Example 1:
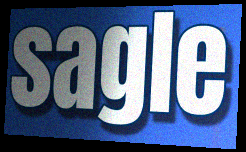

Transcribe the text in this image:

sagle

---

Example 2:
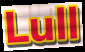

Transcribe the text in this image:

Lull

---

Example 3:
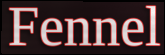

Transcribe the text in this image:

Fennel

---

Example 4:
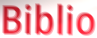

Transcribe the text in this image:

Biblio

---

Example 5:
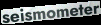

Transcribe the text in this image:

seismometer